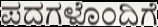
ಪದಗಳೊಂದಿಗೆ